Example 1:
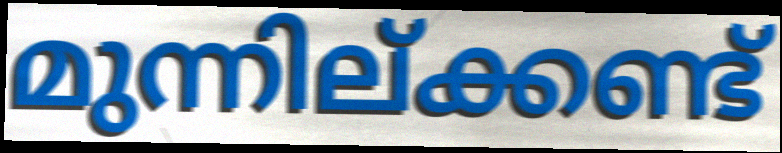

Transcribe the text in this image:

മുന്നില്ക്കണ്ട്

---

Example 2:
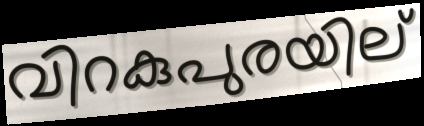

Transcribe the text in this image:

വിറകുപുരയില്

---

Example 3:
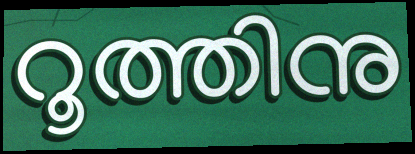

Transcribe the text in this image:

റൂത്തിനു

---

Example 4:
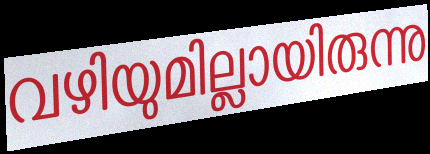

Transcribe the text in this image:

വഴിയുമില്ലായിരുന്നു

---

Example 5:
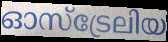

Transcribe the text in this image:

ഓസ്ട്രേലിയ